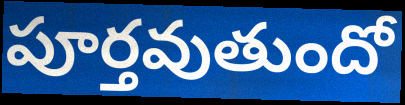
పూర్తవుతుందో